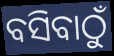
ବସିବାଠୁଁ